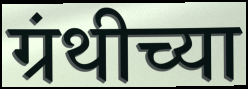
ग्रंथीच्या